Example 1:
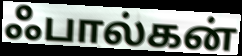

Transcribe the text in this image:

ஃபால்கன்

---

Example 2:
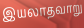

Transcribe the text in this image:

இயலாதவாறு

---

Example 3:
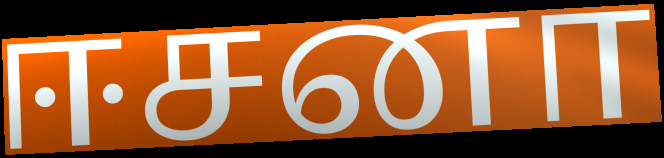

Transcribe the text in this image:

ஈசனா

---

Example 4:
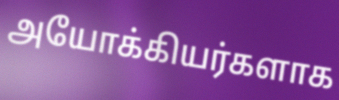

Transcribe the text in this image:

அயோக்கியர்களாக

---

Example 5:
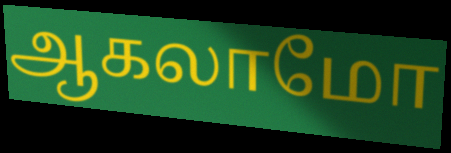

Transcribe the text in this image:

ஆகலாமோ